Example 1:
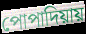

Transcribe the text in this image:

পোপাদিয়ায়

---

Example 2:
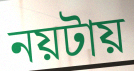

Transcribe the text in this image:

নয়টায়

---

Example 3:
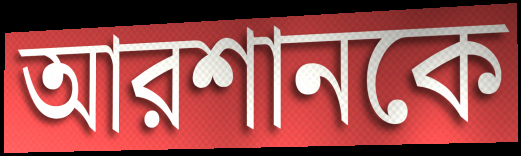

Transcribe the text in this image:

আরশানকে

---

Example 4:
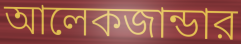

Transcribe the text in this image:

আলেকজান্ডার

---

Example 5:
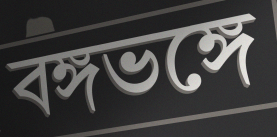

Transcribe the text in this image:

বঙ্গভঙ্গে